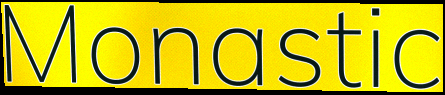
Monastic